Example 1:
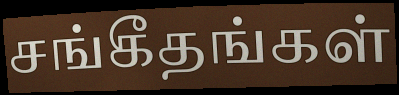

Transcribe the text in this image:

சங்கீதங்கள்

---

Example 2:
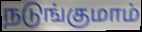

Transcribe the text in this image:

நடுங்குமாம்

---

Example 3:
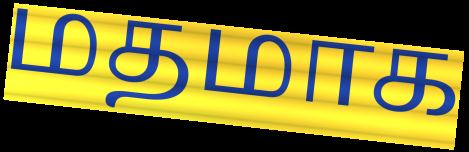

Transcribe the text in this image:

மதமாக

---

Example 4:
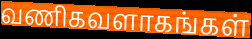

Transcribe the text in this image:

வணிகவளாகங்கள்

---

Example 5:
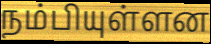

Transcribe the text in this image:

நம்பியுள்ளன